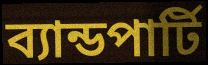
ব্যান্ডপার্টি